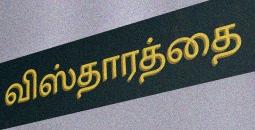
விஸ்தாரத்தை